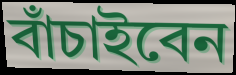
বাঁচাইবেন